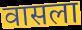
वासला